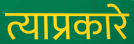
त्याप्रकारे